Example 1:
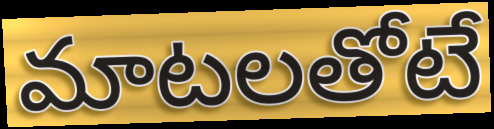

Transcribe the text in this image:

మాటలతోటే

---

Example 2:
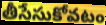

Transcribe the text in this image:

తీసేసుకోవటం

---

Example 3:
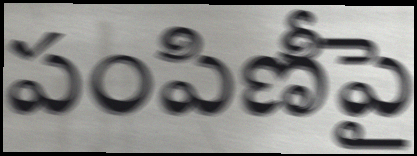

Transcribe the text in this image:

పంపిణీపై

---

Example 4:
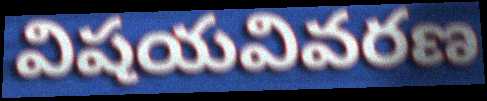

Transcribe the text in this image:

విషయవివరణ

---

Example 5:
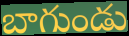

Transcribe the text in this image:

బాగుండు